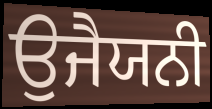
ਉਜੈਯਨੀ